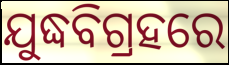
ଯୁଦ୍ଧବିଗ୍ରହରେ